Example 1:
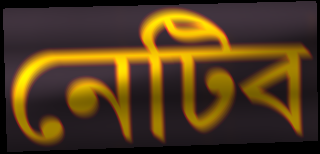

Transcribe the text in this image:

নেটিব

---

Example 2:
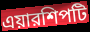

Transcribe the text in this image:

এয়ারশিপটি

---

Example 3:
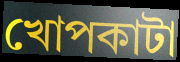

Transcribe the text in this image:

খোপকাটা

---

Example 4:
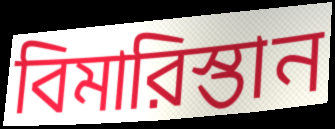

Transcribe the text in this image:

বিমারিস্তান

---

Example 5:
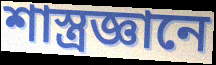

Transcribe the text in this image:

শাস্ত্রজ্ঞানে